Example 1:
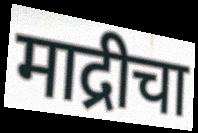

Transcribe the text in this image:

माद्रीचा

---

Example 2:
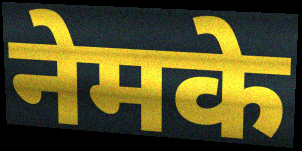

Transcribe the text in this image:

नेमके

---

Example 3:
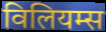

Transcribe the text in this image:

विलियम्स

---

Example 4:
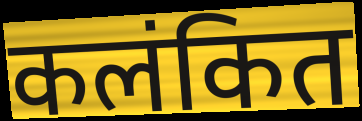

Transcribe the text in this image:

कलंकित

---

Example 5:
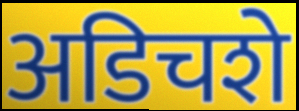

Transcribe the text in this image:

अडिचशे